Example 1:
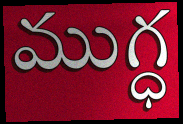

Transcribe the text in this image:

ముగ్ధ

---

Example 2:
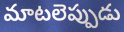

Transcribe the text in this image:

మాటలెప్పుడు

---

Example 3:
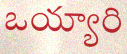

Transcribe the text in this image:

ఒయ్యారి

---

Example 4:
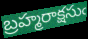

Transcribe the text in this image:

బ్రహ్మరాక్షసుఁ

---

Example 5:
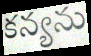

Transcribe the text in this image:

కన్యను